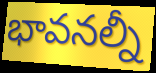
భావనల్నీ